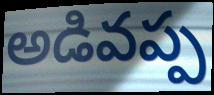
అడివప్ప